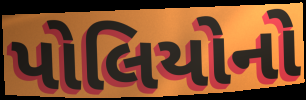
પોલિયોનો